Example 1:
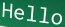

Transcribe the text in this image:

Hello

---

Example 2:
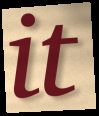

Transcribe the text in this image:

it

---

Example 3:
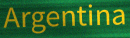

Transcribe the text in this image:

Argentina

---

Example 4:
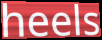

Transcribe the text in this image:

heels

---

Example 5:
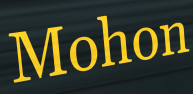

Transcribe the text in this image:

Mohon